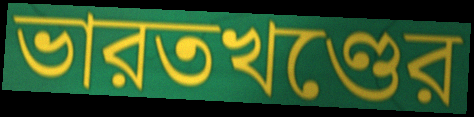
ভারতখণ্ডের